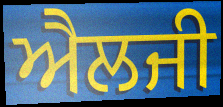
ਐਲਜੀ